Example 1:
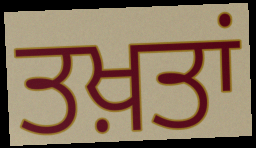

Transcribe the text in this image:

ਤਖ਼ਤਾਂ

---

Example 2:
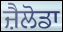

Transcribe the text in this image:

ਜ਼ੈਲੋਡਾ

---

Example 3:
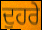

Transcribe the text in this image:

ਦੁਹਰੇ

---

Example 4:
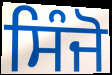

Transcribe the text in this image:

ਸਿੰਜੋ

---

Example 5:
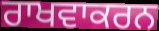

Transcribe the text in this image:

ਰਾਖਵਾਕਰਨ